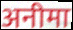
अनीमा